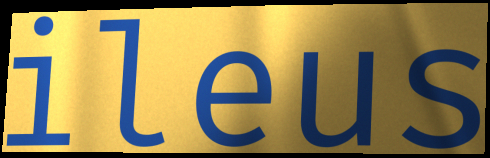
ileus